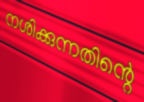
നശിക്കുന്നതിന്റെ